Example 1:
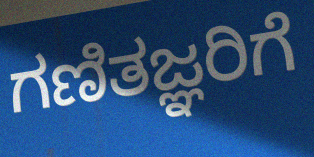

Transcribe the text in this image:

ಗಣಿತಜ್ಞರಿಗೆ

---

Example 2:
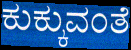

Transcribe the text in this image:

ಕುಕ್ಕುವಂತೆ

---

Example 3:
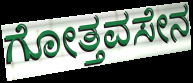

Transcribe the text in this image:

ಗೋತ್ತವಸೇನ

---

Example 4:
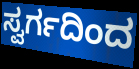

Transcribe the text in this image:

ಸ್ವರ್ಗದಿಂದ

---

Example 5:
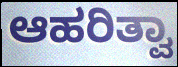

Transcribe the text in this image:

ಆಹರಿತ್ವಾ